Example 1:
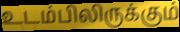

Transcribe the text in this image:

உடம்பிலிருக்கும்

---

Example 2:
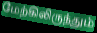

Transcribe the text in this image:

மேற்கிலிருந்தும்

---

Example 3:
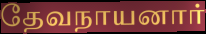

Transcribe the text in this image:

தேவநாயனார்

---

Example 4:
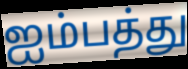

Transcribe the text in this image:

ஐம்பத்து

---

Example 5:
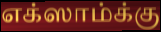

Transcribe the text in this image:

எக்ஸாம்க்கு